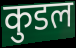
कुडल